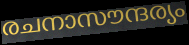
രചനാസൗന്ദര്യം